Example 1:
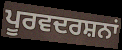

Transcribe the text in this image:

ਪੂਰਵਦਰਸ਼ਨਾਂ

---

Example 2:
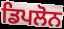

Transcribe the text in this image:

ਡਿਪਲੋਨ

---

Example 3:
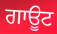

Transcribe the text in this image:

ਗਾਊਟ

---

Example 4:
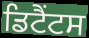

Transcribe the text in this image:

ਡਿਟੈਂਟਸ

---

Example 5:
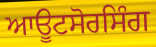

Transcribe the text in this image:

ਆਊਟਸੋਰਸਿੰਗ